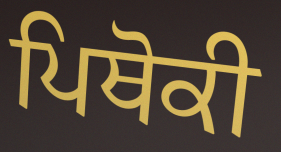
ਪਿਥੋਕੀ